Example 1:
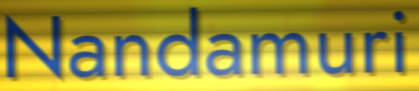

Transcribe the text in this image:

Nandamuri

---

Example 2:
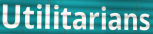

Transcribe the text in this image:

Utilitarians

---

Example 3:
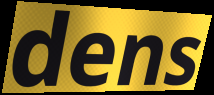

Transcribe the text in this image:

dens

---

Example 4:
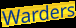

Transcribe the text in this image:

Warders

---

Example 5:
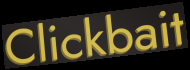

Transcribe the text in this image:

Clickbait